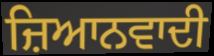
ਜ਼ਿਆਨਵਾਦੀ